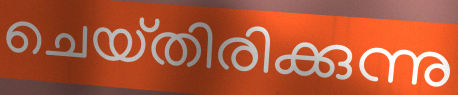
ചെയ്‌തിരിക്കുന്നു